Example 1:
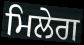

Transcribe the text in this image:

ਮਿਲੇਗ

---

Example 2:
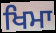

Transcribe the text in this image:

ਖਿਮਾ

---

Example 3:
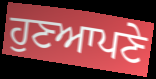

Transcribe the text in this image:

ਹੁਣਆਪਣੇ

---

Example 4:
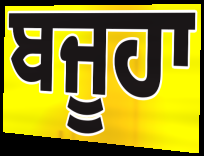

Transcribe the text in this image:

ਬਜੂਹਾ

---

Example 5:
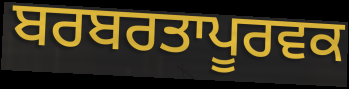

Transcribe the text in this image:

ਬਰਬਰਤਾਪੂਰਵਕ